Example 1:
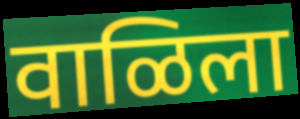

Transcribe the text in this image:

वाळिला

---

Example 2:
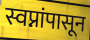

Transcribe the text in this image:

स्वप्नांपासून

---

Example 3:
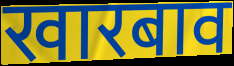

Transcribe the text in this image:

खारबाव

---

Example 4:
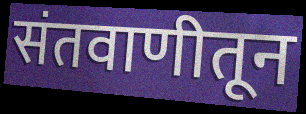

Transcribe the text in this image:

संतवाणीतून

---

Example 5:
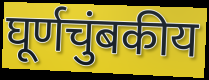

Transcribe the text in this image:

घूर्णचुंबकीय